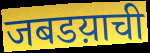
जबडय़ाची